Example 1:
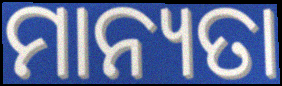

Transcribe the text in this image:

ମାନ୍ୟତା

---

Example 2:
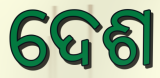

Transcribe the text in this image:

ଦେଶ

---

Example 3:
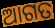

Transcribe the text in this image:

ଆଗତ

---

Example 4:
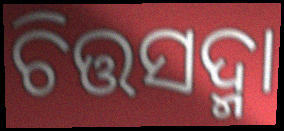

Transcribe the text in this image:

ଚିତ୍ତସଦ୍ମା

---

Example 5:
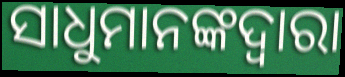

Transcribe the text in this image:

ସାଧୁମାନଙ୍କଦ୍ଵାରା